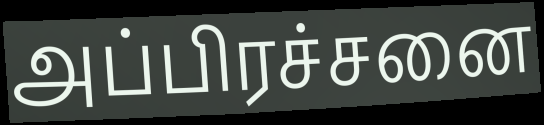
அப்பிரச்சனை